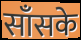
साँसके